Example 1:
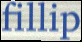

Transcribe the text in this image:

fillip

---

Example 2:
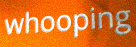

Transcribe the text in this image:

whooping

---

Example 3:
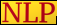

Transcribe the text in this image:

NLP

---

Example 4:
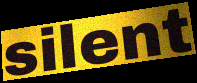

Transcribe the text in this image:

silent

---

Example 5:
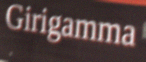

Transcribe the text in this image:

Girigamma